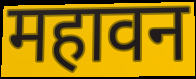
महावन